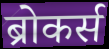
ब्रोकर्स